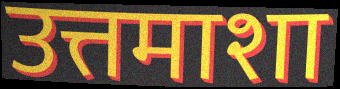
उत्तमाशा